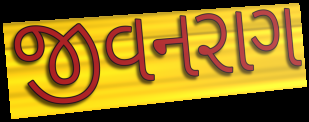
જીવનરાગ